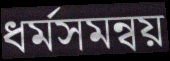
ধর্মসমন্বয়